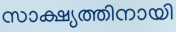
സാക്ഷ്യത്തിനായി